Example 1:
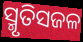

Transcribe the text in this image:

ସ୍ମୃତିସଜଳ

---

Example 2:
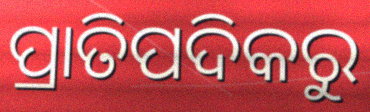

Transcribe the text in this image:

ପ୍ରାତିପଦିକରୁ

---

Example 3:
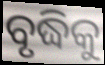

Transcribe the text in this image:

ବୃଦ୍ଧିକୁ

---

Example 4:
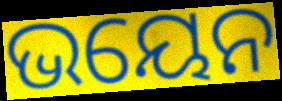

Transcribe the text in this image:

ଭୟେନ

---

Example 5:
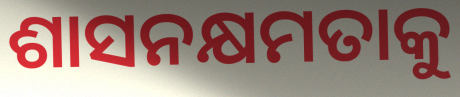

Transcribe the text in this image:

ଶାସନକ୍ଷମତାକୁ